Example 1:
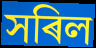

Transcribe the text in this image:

সৰিল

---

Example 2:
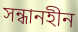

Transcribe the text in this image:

সন্ধানহীন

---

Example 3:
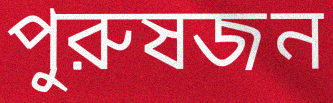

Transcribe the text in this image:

পুৰুষজন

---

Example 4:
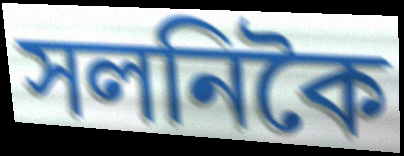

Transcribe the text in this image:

সলনিকৈ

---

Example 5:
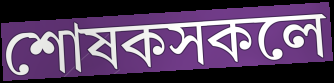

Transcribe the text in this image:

শোষকসকলে